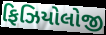
ફિઝિયોલોજી